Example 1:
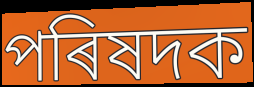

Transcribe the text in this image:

পৰিষদক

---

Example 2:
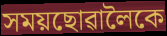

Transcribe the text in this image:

সময়ছোৱালৈকে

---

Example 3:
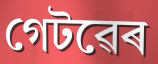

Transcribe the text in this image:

গেটৱেৰ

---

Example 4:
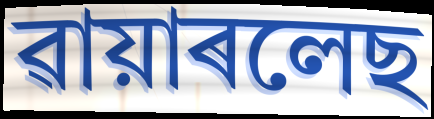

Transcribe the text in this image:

ৱায়াৰলেছ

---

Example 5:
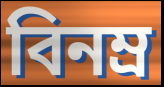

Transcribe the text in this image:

বিনম্ৰ